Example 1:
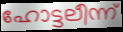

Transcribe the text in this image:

ഹോട്ടലീന്ന്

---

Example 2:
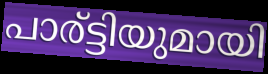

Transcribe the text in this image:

പാര്ട്ടിയുമായി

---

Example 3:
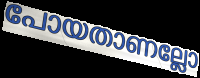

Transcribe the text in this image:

പോയതാണല്ലോ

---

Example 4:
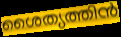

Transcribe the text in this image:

ശൈത്യത്തിൻ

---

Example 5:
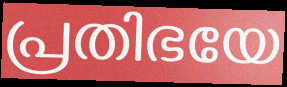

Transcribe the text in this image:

പ്രതിഭയേ